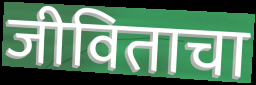
जीविताचा